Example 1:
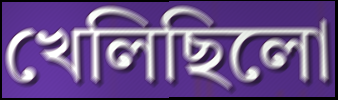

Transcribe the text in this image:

খেলিছিলো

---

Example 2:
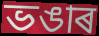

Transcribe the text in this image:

ভঙাৰ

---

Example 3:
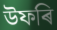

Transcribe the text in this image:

উফৰি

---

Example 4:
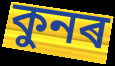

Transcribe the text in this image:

কুনৰ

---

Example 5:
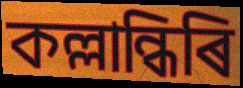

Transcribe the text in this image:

কল্লান্ধিৰি